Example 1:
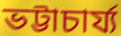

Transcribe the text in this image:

ভট্টাচাৰ্য্য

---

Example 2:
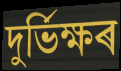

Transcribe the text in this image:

দুৰ্ভিক্ষৰ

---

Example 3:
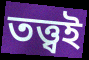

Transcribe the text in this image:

তত্ত্বই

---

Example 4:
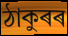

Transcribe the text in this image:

ঠাকুৰৰ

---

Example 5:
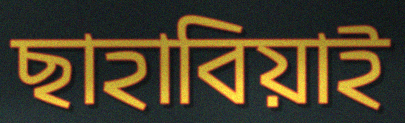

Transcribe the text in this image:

ছাহাবিয়াই